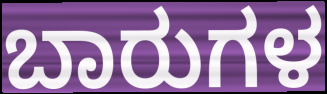
ಬಾರುಗಳ